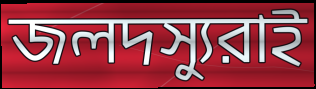
জলদস্যুরাই